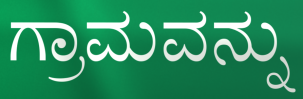
ಗ್ರಾಮವನ್ನು